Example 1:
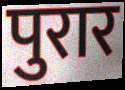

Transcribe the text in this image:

पुरार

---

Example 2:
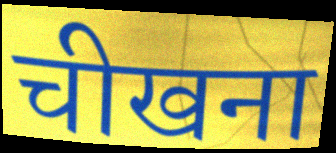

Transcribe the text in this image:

चीखना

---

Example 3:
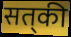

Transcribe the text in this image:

सत्‌की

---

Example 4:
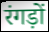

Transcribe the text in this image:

रंगड़ों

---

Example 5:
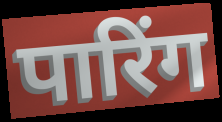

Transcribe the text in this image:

पारिंग